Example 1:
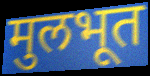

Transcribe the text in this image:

मुलभूत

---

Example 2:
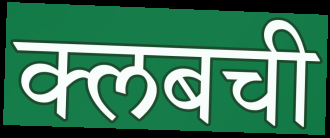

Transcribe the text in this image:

क्लबची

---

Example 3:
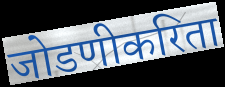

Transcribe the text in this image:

जोडणीकरिता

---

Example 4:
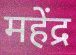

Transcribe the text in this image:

महेंद्र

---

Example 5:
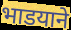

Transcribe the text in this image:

भाडयाने